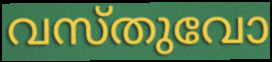
വസ്തുവോ